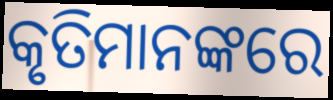
କୃତିମାନଙ୍କରେ